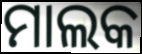
ମାଲକ